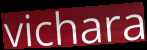
vichara